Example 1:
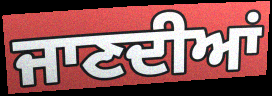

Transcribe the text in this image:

ਜਾਣਦੀਆਂ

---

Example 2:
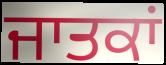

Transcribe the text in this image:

ਜਾਤਕਾਂ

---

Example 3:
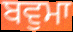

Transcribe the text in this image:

ਬਵੁਮਾ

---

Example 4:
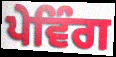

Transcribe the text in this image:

ਪੇਵਿੰਗ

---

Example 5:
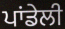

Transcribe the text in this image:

ਪਾਂਡੇਲੀ